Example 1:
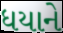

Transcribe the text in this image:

ધયાને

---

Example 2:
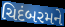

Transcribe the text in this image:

ચિદંબરમને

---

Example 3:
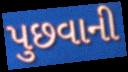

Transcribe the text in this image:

પુછવાની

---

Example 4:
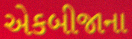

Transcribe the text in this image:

એકબીજાના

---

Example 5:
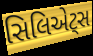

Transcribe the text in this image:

સિલિએટ્સ